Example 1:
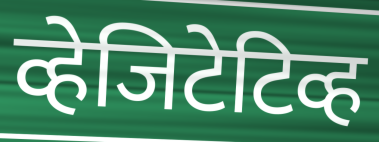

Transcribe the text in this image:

व्हेजिटेटिव्ह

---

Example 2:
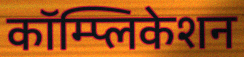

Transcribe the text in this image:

कॉम्प्लिकेशन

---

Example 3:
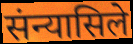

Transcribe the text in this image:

संन्यासिले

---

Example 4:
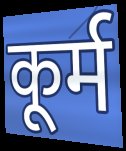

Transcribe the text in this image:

कूर्म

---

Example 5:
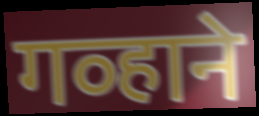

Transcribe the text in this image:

गव्हाने